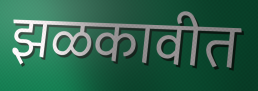
झळकावीत